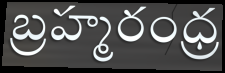
బ్రహ్మరంధ్ర